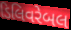
ડિલિવરેબલ